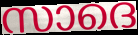
സാദെ